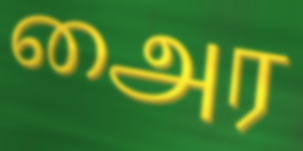
அைர